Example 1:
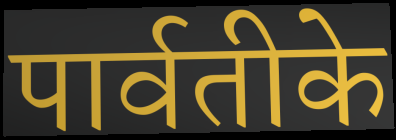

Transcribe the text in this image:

पार्वतीके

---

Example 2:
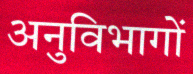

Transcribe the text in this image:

अनुविभागों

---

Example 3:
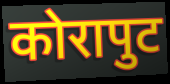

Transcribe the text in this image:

कोरापुट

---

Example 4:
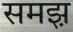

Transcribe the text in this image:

समझ़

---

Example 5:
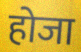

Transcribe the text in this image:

होजा